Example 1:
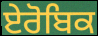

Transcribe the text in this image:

ਏਰੋਬਿਕ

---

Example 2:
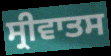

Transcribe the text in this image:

ਸ੍ਰੀਵਾਤਸ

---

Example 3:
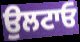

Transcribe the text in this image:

ਉਲਟਾਓ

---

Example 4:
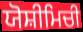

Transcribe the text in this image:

ਯੋਸ਼ੀਮਿਚੀ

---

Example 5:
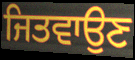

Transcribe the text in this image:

ਜਿਤਵਾਉਣ